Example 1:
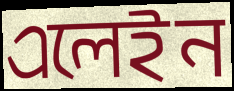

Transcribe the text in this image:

এলেইন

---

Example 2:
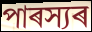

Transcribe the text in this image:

পাৰস্যৰ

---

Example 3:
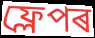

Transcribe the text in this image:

ফ্লেপৰ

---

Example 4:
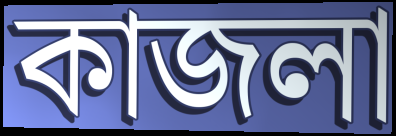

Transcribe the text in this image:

কাজলা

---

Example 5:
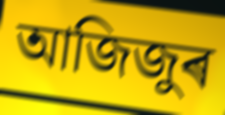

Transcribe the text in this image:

আজিজুৰ